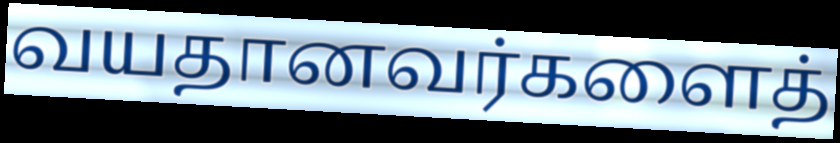
வயதானவர்களைத்